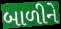
બાળીને